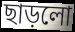
ছাড়লো